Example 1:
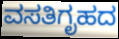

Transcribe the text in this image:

ವಸತಿಗೃಹದ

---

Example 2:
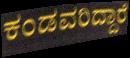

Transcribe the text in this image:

ಕಂಡವರಿದ್ದಾರೆ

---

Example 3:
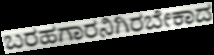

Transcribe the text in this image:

ಬರಹಗಾರನಿಗಿರಬೇಕಾದ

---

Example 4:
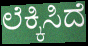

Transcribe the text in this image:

ಲೆಕ್ಕಿಸಿದೆ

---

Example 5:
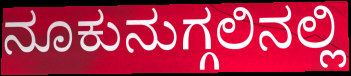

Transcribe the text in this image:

ನೂಕುನುಗ್ಗಲಿನಲ್ಲಿ